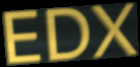
EDX